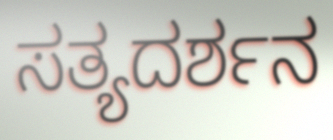
ಸತ್ಯದರ್ಶನ